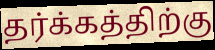
தர்க்கத்திற்கு